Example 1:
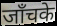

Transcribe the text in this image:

जाँचके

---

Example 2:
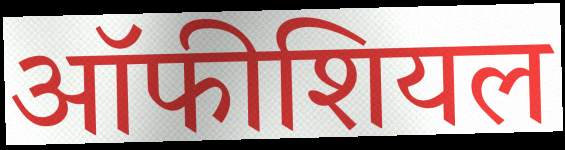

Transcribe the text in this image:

ऑफीशियल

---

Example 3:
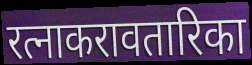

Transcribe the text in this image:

रत्नाकरावतारिका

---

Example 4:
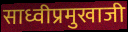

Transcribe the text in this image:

साध्वीप्रमुखाजी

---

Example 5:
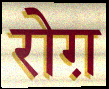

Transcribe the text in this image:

रोग़